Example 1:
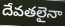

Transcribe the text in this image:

దేవతలైనా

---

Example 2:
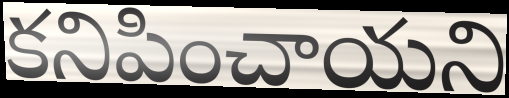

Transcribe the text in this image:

కనిపించాయని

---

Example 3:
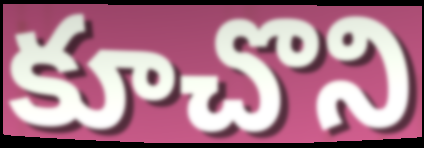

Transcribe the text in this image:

కూచొని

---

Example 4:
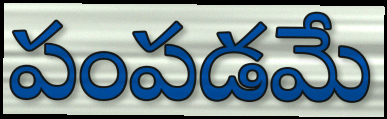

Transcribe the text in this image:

పంపడమే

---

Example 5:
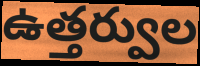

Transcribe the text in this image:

ఉత్తర్వుల